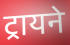
ट्रायने